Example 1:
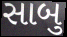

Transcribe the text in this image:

સાબુ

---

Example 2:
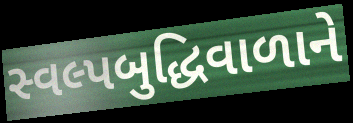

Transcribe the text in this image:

સ્વલ્પબુદ્ધિવાળાને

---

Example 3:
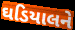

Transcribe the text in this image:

ઘડિયાલને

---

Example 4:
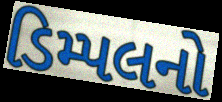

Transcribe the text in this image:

ડિમ્પલનો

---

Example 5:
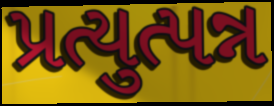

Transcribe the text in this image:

પ્રત્યુત્પન્ન